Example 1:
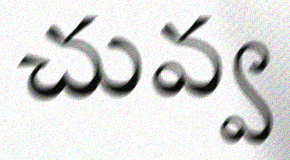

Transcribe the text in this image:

చువ్వ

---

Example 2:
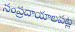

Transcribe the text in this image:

సంప్రదాయాలపట్ల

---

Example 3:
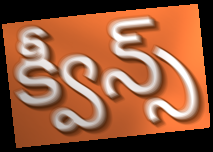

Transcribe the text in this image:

క్వీన్స్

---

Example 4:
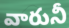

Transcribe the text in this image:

వారునీ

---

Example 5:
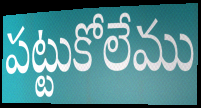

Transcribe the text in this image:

పట్టుకోలేము